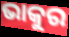
ଭାକୁର